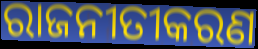
ରାଜନୀତୀକରଣ